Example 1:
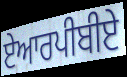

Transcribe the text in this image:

ਏਆਰਪੀਬੀਏ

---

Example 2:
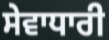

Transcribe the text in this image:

ਸੇਵਾਧਾਰੀ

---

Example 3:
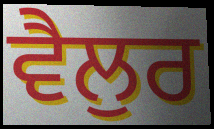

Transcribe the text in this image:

ਵੈਲੁਰ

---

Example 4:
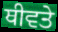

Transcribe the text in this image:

ਥੀਵਤੇ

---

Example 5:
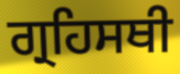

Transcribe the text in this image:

ਗ੍ਰਹਿਸਥੀ